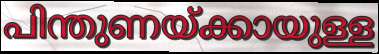
പിന്തുണയ്ക്കായുള്ള